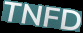
TNFD